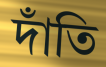
দাঁতি